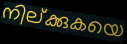
നില്ക്കുകയെ